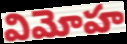
విమోహ